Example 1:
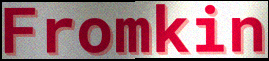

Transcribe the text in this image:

Fromkin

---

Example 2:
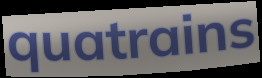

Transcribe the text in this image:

quatrains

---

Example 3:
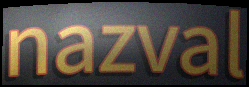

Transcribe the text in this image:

nazval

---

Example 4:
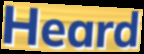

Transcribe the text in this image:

Heard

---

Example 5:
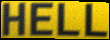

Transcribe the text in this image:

HELL